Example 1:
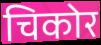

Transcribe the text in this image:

चिकोर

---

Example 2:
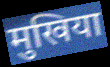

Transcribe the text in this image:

मुखिया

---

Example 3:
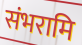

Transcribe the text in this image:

संभरामि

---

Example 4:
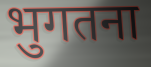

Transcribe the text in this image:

भुगतना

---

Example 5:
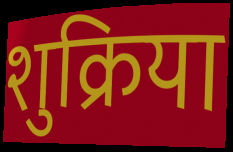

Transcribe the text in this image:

शुक्रिया